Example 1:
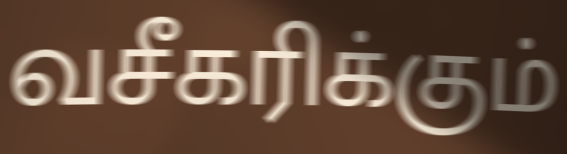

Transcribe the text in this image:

வசீகரிக்கும்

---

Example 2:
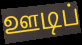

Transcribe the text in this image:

ஊடிப்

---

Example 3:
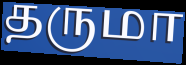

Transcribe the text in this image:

தருமா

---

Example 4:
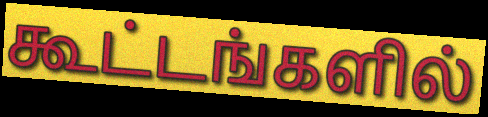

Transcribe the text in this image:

கூட்டங்களில்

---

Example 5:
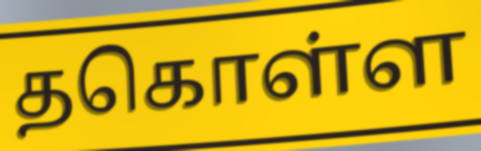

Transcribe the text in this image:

தகொள்ள